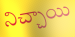
నిచ్చాయి